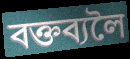
বক্তব্যলৈ